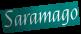
Saramago